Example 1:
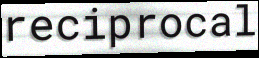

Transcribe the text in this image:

reciprocal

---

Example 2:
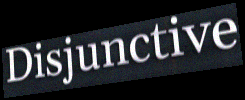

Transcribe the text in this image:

Disjunctive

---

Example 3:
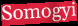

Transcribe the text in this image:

Somogyi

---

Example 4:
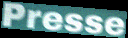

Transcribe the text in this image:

Presse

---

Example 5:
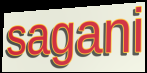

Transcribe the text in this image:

sagani